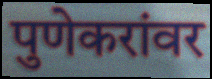
पुणेकरांवर